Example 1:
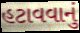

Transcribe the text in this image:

હટાવવાનું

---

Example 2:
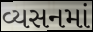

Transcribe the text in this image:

વ્યસનમાં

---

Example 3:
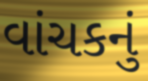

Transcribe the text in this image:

વાંચકનું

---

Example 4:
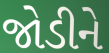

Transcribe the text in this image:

જોડીને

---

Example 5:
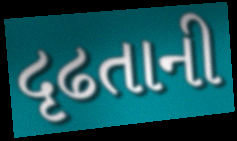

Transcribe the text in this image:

દૃઢતાની